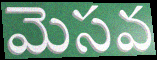
మెసవ